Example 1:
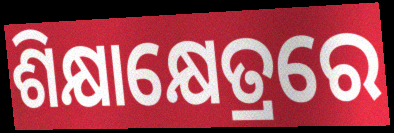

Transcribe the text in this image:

ଶିକ୍ଷାକ୍ଷେତ୍ରରେ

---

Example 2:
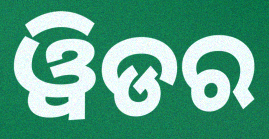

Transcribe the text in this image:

ୱିଡର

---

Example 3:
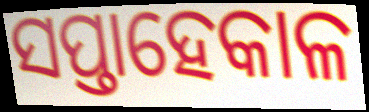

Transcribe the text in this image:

ସପ୍ତାହେକାଳ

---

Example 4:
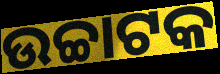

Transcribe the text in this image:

ଉଚ୍ଚାଟକ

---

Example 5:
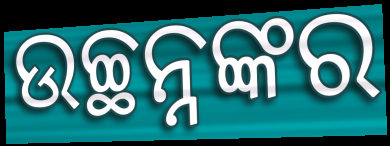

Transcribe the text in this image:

ଉଚ୍ଛନ୍ନଙ୍କର